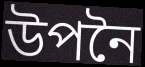
উপনৈ